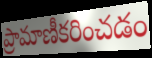
ప్రామాణీకరించడం